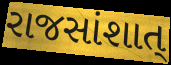
રાજસાંશાત્